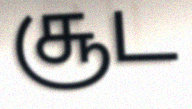
சூட